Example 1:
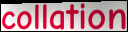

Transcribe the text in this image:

collation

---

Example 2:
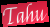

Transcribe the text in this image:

Tahu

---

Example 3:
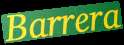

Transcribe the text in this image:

Barrera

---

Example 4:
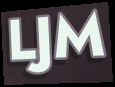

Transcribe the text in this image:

LJM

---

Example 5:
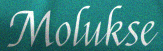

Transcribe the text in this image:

Molukse